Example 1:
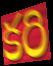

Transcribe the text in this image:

కరి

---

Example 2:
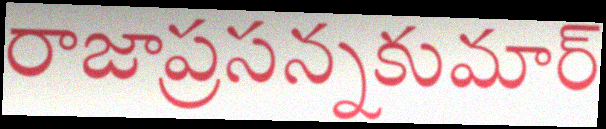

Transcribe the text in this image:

రాజాప్రసన్నకుమార్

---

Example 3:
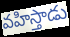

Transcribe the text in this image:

వహిస్తాడు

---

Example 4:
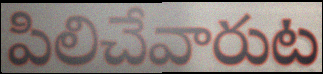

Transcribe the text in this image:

పిలిచేవారుట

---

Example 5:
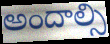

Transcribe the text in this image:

అందాల్సి